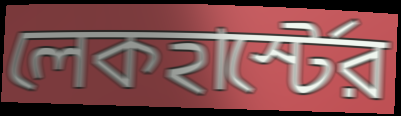
লেকহার্স্টের